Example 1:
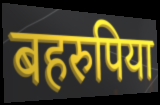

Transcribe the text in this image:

बहरुपिया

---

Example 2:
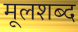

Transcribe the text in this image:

मूलशब्द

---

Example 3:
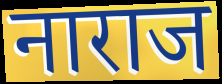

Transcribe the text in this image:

नाराज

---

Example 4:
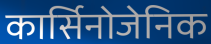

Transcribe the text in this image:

कार्सिनोजेनिक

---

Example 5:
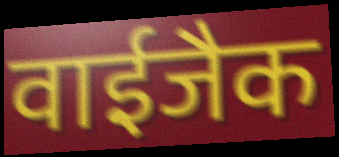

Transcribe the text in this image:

वाईजैक